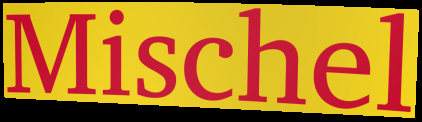
Mischel